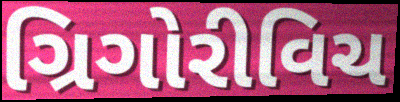
ગ્રિગોરીવિચ